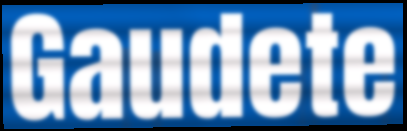
Gaudete